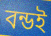
বন্ডই